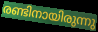
രണ്ടിനായിരുന്നു